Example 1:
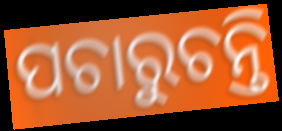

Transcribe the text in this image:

ପଚାରୁଚନ୍ତି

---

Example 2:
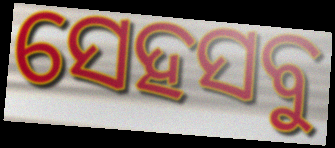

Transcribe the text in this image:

ସେହସବୁ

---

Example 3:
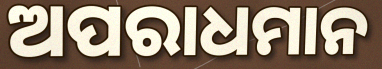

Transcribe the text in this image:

ଅପରାଧମାନ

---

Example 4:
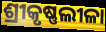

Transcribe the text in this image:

ଶ୍ରୀକୃଷ୍ଣଲୀଳା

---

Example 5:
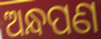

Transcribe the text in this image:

ଅନ୍ଧପଣ